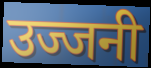
उज्जनी